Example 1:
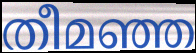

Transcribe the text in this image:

തീമഞ്ഞ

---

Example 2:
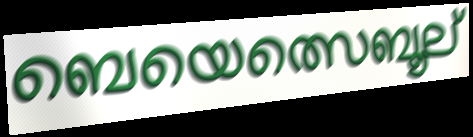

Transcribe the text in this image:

ബെയെത്സെബൂല്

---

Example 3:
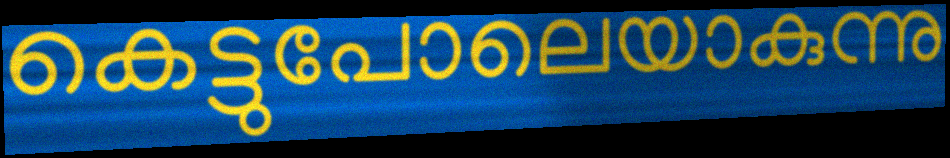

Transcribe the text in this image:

കെട്ടുപോലെയാകുന്നു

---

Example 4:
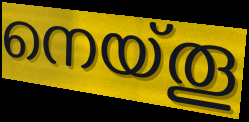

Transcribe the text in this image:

നെയ്തൂ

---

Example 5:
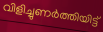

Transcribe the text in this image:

വിളിച്ചുണർത്തിയിട്ട്